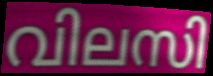
വിലസി